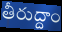
తీరుద్దాం